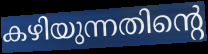
കഴിയുന്നതിന്റെ